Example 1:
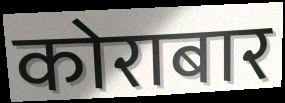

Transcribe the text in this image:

कोराबार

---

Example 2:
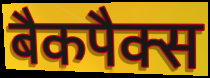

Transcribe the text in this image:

बैकपैक्स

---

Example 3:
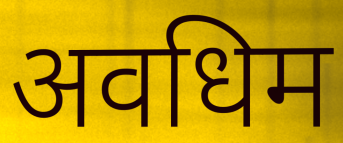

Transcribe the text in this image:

अवधिम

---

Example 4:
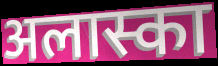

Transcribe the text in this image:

अलास्का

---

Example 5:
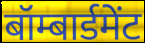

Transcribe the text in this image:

बॉम्बार्डमेंट